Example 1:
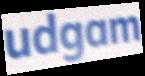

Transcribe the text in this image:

udgam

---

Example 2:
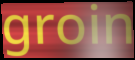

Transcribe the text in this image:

groin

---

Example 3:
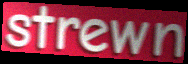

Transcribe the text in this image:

strewn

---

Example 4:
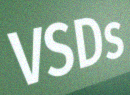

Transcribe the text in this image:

VSDs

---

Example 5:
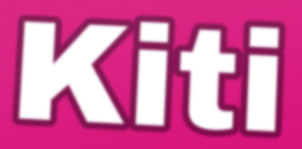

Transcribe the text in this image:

Kiti